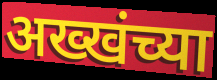
अख्खंच्या